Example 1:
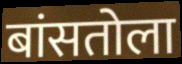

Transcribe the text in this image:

बांसतोला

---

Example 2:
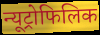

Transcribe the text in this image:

न्यूट्रोफिलिक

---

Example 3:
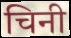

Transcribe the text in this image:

चिनी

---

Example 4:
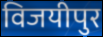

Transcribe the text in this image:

विजयीपुर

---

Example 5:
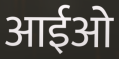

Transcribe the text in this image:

आईओ